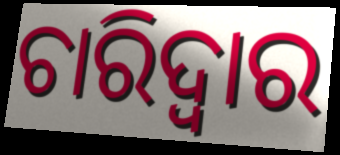
ଚାରିଦ୍ୱାର